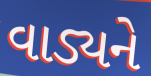
વાડ્યને